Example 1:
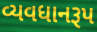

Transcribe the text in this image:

વ્યવધાનરૂપ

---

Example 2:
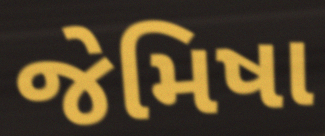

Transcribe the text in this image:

જેમિષા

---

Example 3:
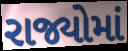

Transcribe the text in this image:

રાજ્યોમાં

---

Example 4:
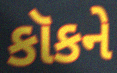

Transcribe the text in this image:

કૉકને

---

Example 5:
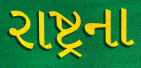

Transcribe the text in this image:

રાષ્ટ્રના